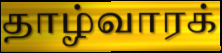
தாழ்வாரக்